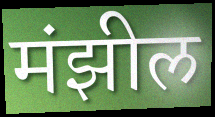
मंझील